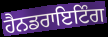
ਹੈਨਡਰਾਇਟਿੰਗ